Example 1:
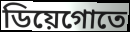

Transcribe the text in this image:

ডিয়েগোতে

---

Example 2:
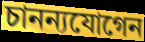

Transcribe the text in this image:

চানন্যযোগেন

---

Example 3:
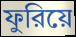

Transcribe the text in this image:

ফুরিয়ে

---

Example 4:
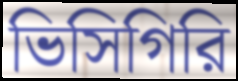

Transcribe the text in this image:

ভিসিগিরি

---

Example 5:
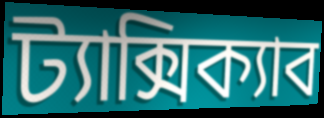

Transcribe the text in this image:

ট্যাক্সিক্যাব